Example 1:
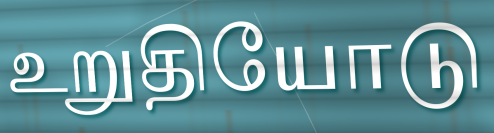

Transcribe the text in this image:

உறுதியோடு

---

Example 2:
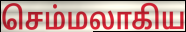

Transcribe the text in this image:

செம்மலாகிய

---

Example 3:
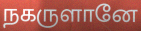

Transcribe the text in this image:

நகருளானே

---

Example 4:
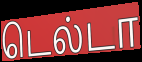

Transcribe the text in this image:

டெல்டா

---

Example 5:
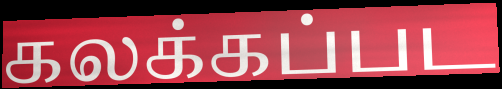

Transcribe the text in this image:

கலக்கப்பட